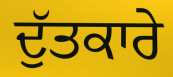
ਦੁੱਤਕਾਰੇ